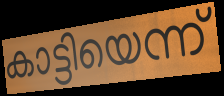
കാട്ടിയെന്ന്